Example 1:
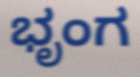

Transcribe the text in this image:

ಭೃಂಗ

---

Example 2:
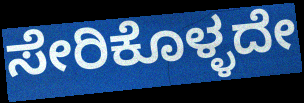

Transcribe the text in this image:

ಸೇರಿಕೊಳ್ಳದೇ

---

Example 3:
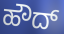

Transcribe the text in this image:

ಹೌದ್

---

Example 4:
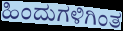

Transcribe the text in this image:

ಹಿಂದುಗಳಿಗಿಂತ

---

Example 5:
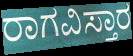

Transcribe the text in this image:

ರಾಗವಿಸ್ತಾರ